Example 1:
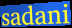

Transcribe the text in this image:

sadani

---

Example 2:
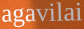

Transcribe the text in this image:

agavilai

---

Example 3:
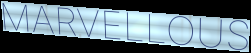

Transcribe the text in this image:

MARVELLOUS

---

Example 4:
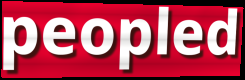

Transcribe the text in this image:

peopled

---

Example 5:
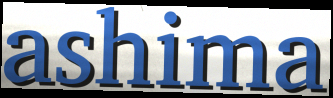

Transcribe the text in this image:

ashima